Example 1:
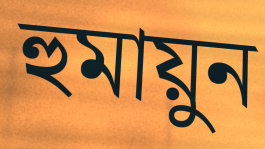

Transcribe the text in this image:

হুমায়ুন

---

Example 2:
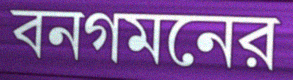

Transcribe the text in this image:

বনগমনের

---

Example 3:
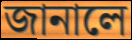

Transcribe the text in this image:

জানালে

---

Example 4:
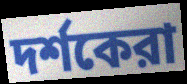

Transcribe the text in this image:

দর্শকেরা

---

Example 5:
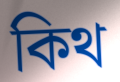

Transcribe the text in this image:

কিথ